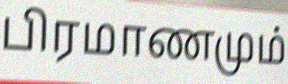
பிரமாணமும்